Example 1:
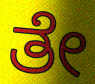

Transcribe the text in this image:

ತೇ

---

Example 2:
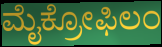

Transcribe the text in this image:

ಮೈಕ್ರೋಫಿಲಂ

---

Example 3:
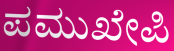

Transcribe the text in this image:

ಪಮುಖೇಪಿ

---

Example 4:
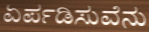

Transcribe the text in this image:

ಏರ್ಪಡಿಸುವೆನು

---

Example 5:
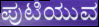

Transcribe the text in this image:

ಪುಟಿಯುವ